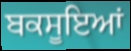
ਬਕਸੂਇਆਂ